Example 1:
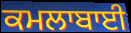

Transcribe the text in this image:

ਕਮਲਾਬਾਈ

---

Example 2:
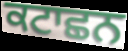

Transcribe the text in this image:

ਕਟਾਛਨ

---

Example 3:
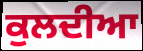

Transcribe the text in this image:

ਕੁਲਦੀਆ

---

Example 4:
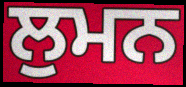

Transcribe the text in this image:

ਲੁਮਨ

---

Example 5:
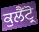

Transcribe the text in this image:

ਕੁਲੈਂਟ੍ਰੋ